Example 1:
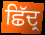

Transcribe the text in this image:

ਛਿੱਦ੍ਰ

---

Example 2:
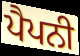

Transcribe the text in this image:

ਪੈਪਨੀ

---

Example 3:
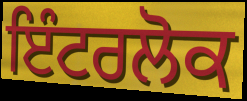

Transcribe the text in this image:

ਇੰਟਰਲੋਕ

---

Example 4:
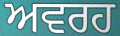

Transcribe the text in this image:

ਅਵਰਹ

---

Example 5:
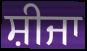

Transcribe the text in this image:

ਸ਼ੀਜਾ